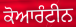
ਕੋਆਰੰਟੀਨ